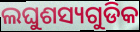
ଲଘୁଶସ୍ୟଗୁଡିକ